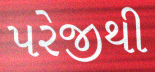
પરેજીથી